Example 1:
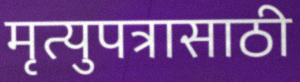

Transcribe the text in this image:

मृत्युपत्रासाठी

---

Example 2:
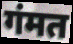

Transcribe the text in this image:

गंमत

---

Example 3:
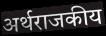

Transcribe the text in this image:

अर्थराजकीय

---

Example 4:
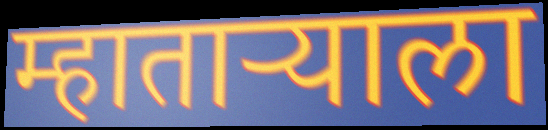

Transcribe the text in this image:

म्हाताऱ्याला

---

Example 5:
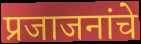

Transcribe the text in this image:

प्रजाजनांचे